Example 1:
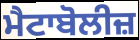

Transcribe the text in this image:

ਮੈਟਾਬੋਲੀਜ਼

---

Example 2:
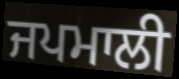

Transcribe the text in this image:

ਜਪਮਾਲੀ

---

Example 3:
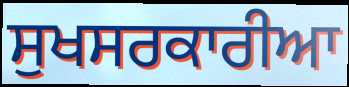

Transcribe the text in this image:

ਸੁਖਸਰਕਾਰੀਆ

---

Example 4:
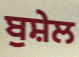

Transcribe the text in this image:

ਬੁਸ਼ੇਲ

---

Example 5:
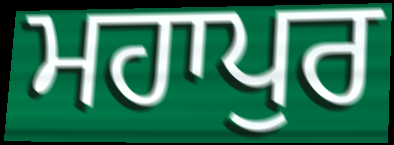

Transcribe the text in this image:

ਮਹਾਪੁਰ